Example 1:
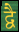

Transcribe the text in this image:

द्वै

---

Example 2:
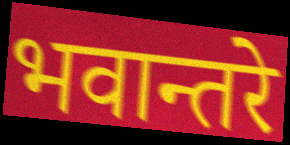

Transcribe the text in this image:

भवान्तरे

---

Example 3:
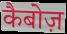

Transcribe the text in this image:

कैबोज़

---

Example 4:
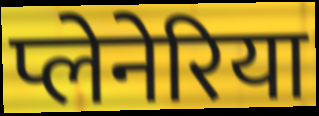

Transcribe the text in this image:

प्लेनेरिया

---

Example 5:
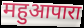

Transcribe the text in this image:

महुआपारा